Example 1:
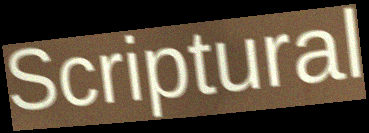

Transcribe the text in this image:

Scriptural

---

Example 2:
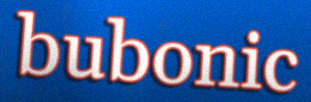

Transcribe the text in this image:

bubonic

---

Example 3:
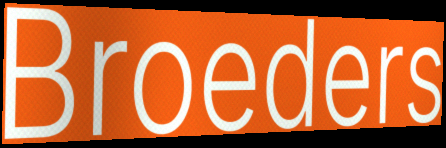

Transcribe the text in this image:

Broeders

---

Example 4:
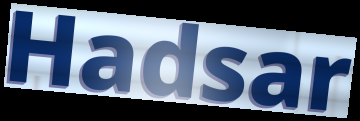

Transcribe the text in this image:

Hadsar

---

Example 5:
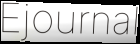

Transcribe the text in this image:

Ejournal